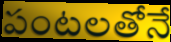
పంటలతోనే